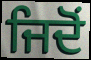
ਜਿਦੋਂ